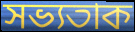
সভ্যতাক